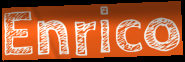
Enrico